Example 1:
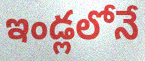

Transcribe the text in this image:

ఇండ్లలోనే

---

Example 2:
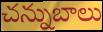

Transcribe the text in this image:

చన్నుబాలు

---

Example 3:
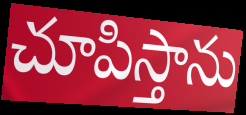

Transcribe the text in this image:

చూపిస్తాను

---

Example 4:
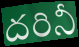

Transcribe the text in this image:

దరినీ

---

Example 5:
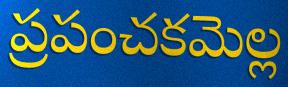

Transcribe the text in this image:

ప్రపంచకమెల్ల